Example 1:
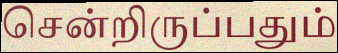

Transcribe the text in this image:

சென்றிருப்பதும்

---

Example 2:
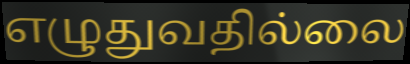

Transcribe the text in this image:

எழுதுவதில்லை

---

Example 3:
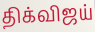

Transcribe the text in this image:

திக்விஜய்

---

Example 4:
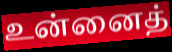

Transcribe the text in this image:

உன்னைத்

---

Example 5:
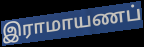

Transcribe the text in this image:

இராமாயணப்